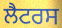
ਲੈਟਰਸ